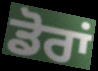
ਡੋਰਾਂ